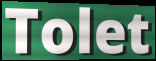
Tolet